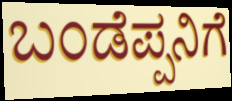
ಬಂಡೆಪ್ಪನಿಗೆ